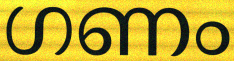
ഗണം